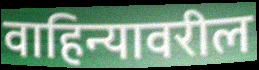
वाहिन्यावरील